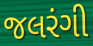
જલરંગી